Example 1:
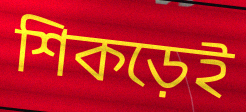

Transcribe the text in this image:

শিকড়েই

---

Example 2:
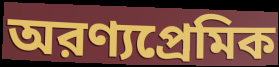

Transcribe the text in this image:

অরণ্যপ্রেমিক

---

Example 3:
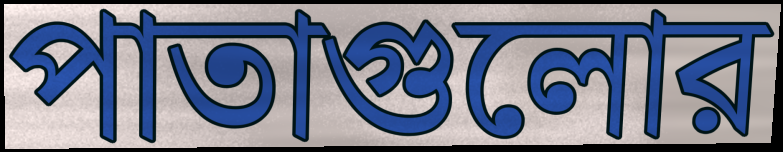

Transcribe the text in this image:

পাতাগুলোর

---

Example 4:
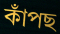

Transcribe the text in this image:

কাঁপছ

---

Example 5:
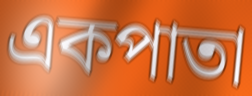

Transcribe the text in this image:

একপাতা